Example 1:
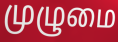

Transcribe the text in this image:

முழுமை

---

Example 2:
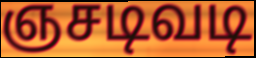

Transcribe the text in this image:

ஞசடிவடி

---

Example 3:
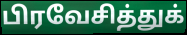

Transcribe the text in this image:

பிரவேசித்துக்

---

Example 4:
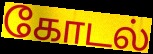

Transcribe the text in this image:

கோடல்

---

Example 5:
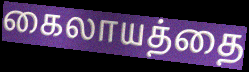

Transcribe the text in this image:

கைலாயத்தை